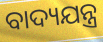
ବାଦ୍ୟଯନ୍ତ୍ର